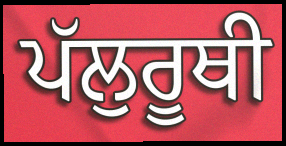
ਪੱਲੁਰੂਥੀ